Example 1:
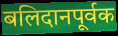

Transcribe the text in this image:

बलिदानपूर्वक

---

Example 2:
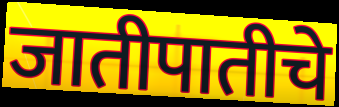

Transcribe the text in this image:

जातीपातीचे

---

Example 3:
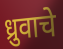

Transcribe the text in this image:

ध्रुवाचे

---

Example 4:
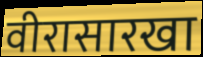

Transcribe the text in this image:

वीरासारखा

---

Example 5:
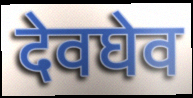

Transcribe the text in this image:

देवघेव